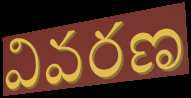
వివరణ